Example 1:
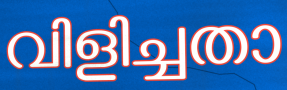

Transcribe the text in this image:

വിളിച്ചതാ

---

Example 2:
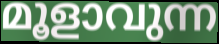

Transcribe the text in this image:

മൂളാവുന്ന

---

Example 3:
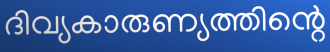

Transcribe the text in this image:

ദിവ്യകാരുണ്യത്തിന്റെ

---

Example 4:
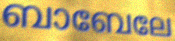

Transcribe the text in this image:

ബാബേലേ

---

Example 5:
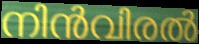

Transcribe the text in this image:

നിൻവിരൽ